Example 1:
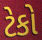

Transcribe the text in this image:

ટેકો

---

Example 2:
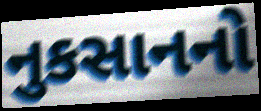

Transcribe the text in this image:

નુકસાનનો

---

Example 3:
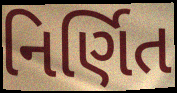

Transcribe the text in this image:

નિર્ણિત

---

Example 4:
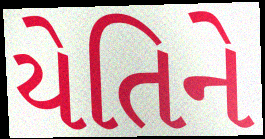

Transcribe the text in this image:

યેતિને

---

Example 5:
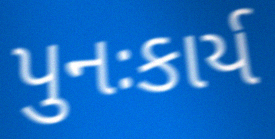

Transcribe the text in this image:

પુનઃકાર્ય